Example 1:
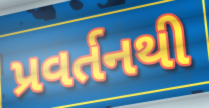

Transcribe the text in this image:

પ્રવર્તનથી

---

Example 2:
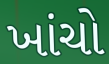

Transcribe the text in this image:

ખાંચો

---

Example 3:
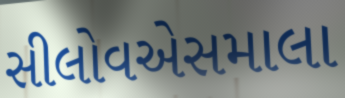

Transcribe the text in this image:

સીલોવએસમાલા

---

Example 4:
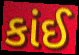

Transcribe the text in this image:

કાંઈ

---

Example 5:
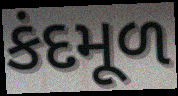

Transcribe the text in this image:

કંદમૂળ